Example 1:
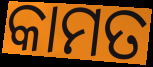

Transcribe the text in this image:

କାମତ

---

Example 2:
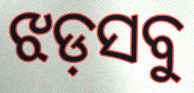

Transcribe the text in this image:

ଝଡ଼ସବୁ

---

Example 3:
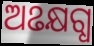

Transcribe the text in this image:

ଅଌକ୍ଷଗ୍ଧ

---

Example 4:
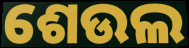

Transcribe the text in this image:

ଶେଉଲ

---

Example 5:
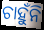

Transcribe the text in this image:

ଚାହୁଁନି